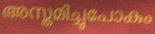
അസ്തമിച്ചുപോകും